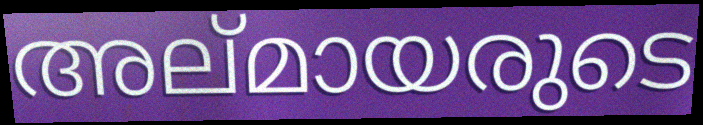
അല്മായരുടെ